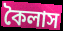
কৈলাস